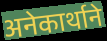
अनेकार्थाने